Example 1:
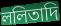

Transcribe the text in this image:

ললিতাদি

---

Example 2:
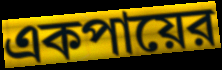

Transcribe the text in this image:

একপায়ের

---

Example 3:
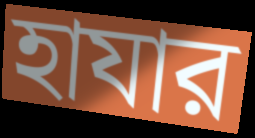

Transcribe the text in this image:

হাযার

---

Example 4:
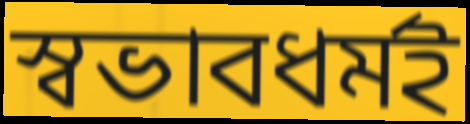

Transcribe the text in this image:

স্বভাবধর্মই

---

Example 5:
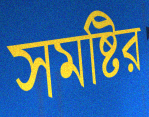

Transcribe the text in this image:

সমষ্টির